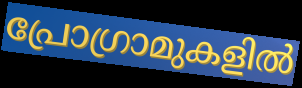
പ്രോഗ്രാമുകളിൽ